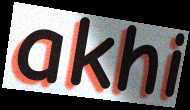
akhi